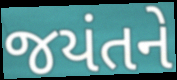
જયંતને